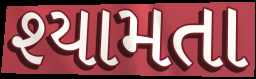
શ્યામતા